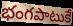
భంగపాటుకే